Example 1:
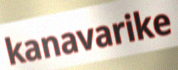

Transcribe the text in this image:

kanavarike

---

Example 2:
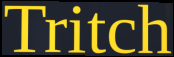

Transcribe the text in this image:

Tritch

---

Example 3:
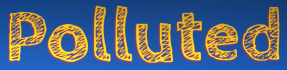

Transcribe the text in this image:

Polluted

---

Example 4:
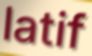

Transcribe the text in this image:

latif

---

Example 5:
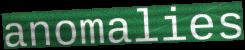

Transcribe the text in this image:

anomalies